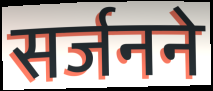
सर्जनने